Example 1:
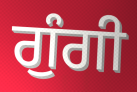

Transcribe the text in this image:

ਗੁੰਗੀ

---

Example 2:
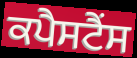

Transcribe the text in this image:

ਕਪੈਸਟੈਂਸ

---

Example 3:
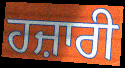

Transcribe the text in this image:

ਹਜ਼ਾਰੀ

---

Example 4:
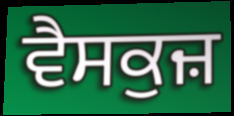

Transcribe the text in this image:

ਵੈਸਕੁਜ਼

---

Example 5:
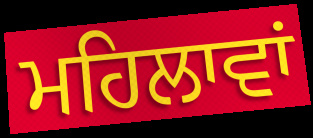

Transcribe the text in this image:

ਮਹਿਲਾਵਾਂ